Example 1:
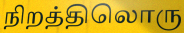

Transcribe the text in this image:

நிறத்திலொரு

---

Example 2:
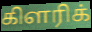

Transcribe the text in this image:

கிளரிக்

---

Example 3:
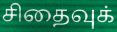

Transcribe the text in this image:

சிதைவுக்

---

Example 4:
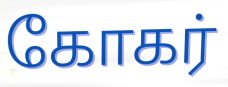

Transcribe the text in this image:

கோகர்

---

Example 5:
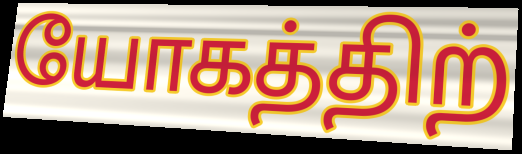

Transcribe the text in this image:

யோகத்திற்